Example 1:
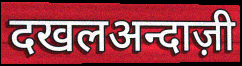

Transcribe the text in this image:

दखलअन्दाज़ी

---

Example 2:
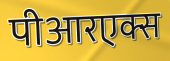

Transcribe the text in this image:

पीआरएक्स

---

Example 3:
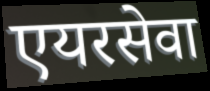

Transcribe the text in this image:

एयरसेवा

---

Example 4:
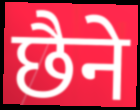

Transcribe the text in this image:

छैने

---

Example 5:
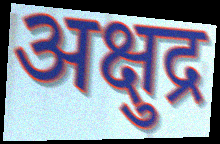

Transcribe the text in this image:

अक्षुद्र